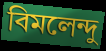
বিমলেন্দু